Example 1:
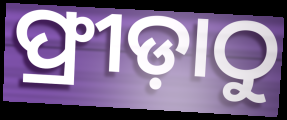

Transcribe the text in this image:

ଫ୍ରୀଡ଼ାଠୁ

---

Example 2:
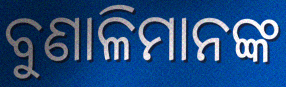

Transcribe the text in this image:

ବୁଣାଳିମାନଙ୍କ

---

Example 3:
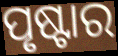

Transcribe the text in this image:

ପୃଷ୍ଟାର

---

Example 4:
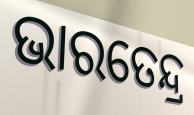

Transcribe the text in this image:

ଭାରତେନ୍ଦ୍ର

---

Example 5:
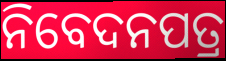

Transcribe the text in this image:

ନିବେଦନପତ୍ର